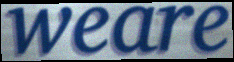
weare